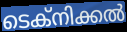
ടെക്നിക്കൽ